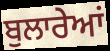
ਬੁਲਾਰੇਆਂ